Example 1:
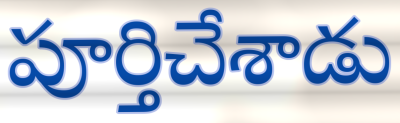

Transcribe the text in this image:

పూర్తిచేశాడు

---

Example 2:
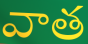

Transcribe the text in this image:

వాత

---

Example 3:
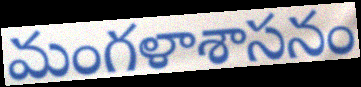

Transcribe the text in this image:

మంగళాశాసనం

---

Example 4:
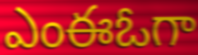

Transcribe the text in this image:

ఎంఈఓగా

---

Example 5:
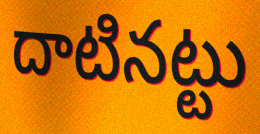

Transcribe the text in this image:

దాటినట్టు